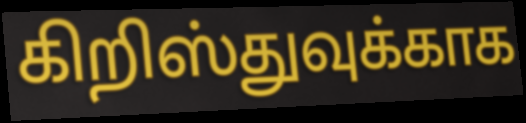
கிறிஸ்துவுக்காக